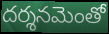
దర్శనమెంతో